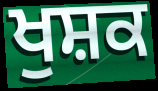
ਖੁਸ਼ਕ